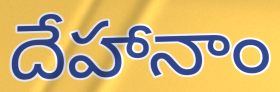
దేహానాం